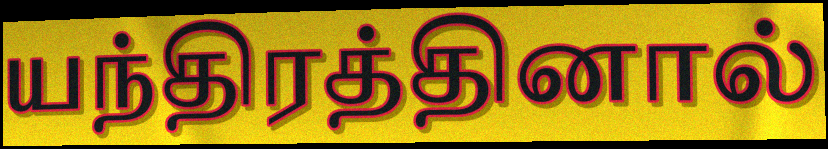
யந்திரத்தினால்